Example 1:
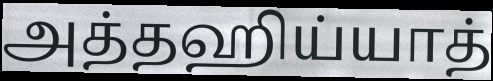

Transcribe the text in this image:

அத்தஹிய்யாத்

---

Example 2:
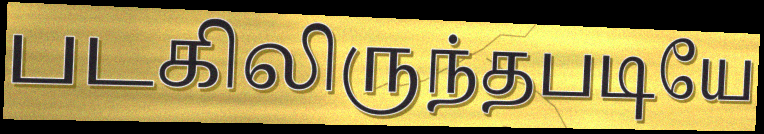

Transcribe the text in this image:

படகிலிருந்தபடியே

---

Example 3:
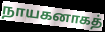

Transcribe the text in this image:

நாயகனாகத்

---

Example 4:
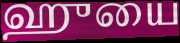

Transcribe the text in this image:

ஹுயை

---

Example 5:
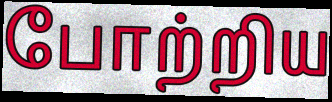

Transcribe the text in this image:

போற்றிய